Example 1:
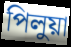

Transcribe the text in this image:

পিলুয়া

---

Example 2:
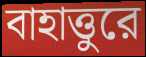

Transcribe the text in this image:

বাহাত্তুরে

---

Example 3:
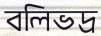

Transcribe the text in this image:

বলিভদ্র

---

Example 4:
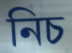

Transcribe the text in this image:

নিচ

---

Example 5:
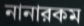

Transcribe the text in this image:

নানারকম